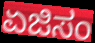
ಏಜಿಸಂ